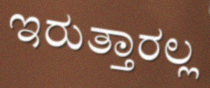
ಇರುತ್ತಾರಲ್ಲ